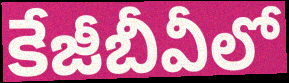
కేజీబీవీలో